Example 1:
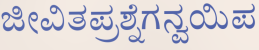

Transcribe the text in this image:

ಜೀವಿತಪ್ರಶ್ನೆಗನ್ವಯಿಪ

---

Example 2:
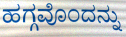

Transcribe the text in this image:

ಹಗ್ಗವೊಂದನ್ನು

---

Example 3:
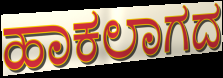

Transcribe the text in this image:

ಹಾಕಲಾಗದ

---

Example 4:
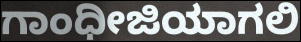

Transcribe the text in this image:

ಗಾಂಧೀಜಿಯಾಗಲಿ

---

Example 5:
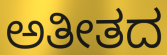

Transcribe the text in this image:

ಅತೀತದ